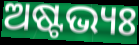
ଅଷ୍ଟଭ୍ୟଃ